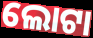
ଲୋଟା